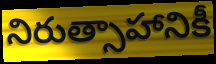
నిరుత్సాహానికీ